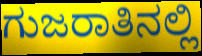
ಗುಜರಾತಿನಲ್ಲಿ